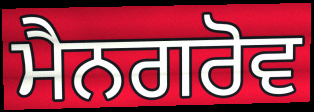
ਮੈਨਗਰੋਵ